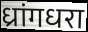
ध्रांगधरा